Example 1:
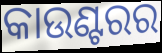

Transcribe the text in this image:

କାଉଣ୍ଟରର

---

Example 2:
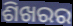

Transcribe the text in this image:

ଶିଖରର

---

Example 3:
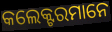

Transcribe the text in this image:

କଲେକ୍ଟରମାନେ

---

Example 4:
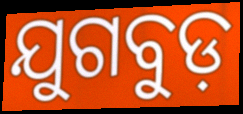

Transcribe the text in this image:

ଯୁଗବୁଡ଼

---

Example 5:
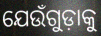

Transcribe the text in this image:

ଯେଉଁଗୁଡ଼ାକୁ